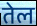
तेल